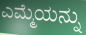
ಎಮ್ಮೆಯನ್ನು